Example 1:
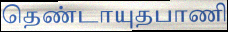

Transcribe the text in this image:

தெண்டாயுதபாணி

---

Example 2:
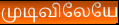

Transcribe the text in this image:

முடிவிலேயே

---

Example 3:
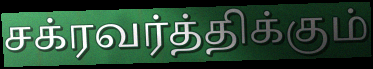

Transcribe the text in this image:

சக்ரவர்த்திக்கும்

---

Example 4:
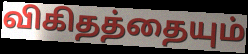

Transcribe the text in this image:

விகிதத்தையும்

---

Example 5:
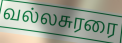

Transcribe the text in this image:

வல்லசுரரை